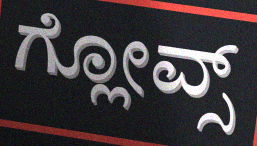
ಗ್ಲೋವ್ಸ್